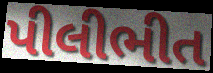
પીલીભીત